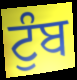
ਟੁੰਬ